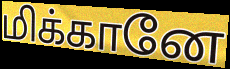
மிக்கானே